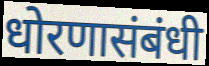
धोरणासंबंधी